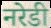
नरेडी